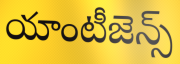
యాంటీజెన్స్